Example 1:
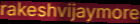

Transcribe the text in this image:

rakeshvijaymore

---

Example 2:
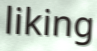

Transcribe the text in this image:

liking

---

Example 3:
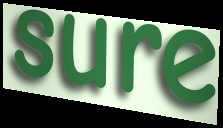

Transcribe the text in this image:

sure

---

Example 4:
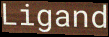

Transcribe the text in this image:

Ligand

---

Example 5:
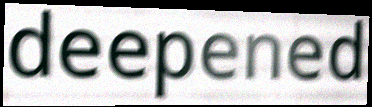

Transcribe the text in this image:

deepened